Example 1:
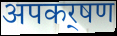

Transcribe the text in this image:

अपकर्षण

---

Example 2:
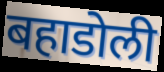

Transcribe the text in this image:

बहाडोली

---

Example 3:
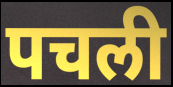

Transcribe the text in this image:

पचली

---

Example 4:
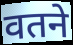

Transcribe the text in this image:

वतने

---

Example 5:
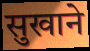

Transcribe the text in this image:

सुखाने